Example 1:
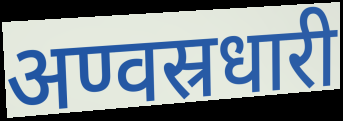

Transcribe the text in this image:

अण्वस्रधारी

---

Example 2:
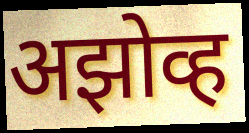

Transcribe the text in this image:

अझोव्ह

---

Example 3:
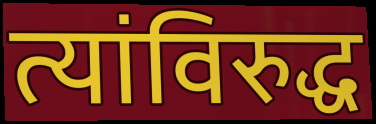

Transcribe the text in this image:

त्यांविरुद्ध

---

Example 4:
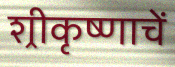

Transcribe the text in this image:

श्रीकृष्णाचें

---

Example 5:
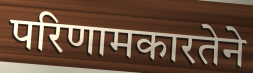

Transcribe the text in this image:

परिणामकारतेने